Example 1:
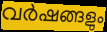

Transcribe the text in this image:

വർഷങ്ങളും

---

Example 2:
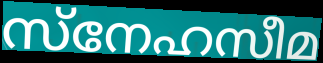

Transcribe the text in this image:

സ്നേഹസീമ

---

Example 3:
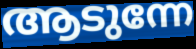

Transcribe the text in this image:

ആടുന്നേ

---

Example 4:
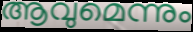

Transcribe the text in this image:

ആവുമെന്നും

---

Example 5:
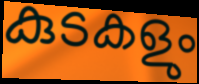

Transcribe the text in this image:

കുടകളും